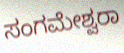
ಸಂಗಮೇಶ್ವರಾ